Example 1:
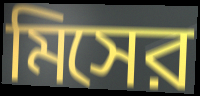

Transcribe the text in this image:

মিসের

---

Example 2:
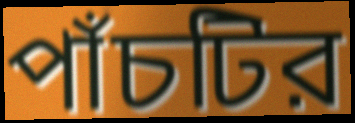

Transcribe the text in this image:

পাঁচটির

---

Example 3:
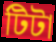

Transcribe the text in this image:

টিটা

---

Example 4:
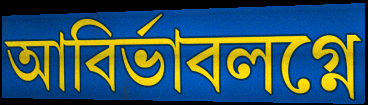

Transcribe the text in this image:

আবির্ভাবলগ্নে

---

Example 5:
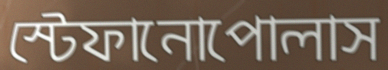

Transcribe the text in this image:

স্টেফানোপোলাস